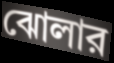
ঝোলার